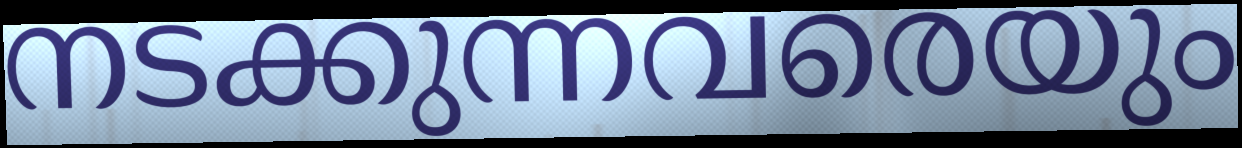
നടക്കുന്നവരെയും